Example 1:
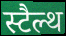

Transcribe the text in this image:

स्टैल्थ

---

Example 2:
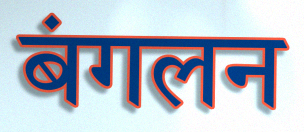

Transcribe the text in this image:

बंगलन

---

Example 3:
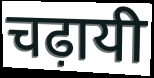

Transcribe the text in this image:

चढ़ायी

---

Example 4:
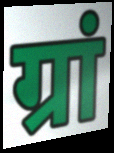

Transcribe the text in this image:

ग्रां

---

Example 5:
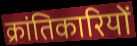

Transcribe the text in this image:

क्रांतिकारियों